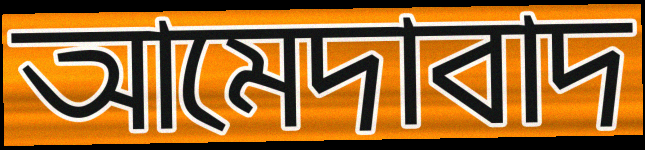
আমেদাবাদ